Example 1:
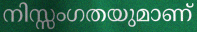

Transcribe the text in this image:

നിസ്സംഗതയുമാണ്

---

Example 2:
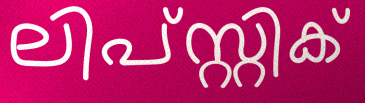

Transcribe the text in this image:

ലിപ്സ്റ്റിക്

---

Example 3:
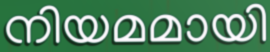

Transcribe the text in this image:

നിയമമായി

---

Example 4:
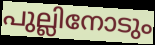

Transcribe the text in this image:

പുല്ലിനോടും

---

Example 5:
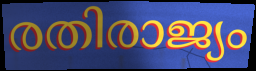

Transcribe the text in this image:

രതിരാജ്യം